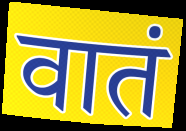
वातं